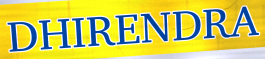
DHIRENDRA